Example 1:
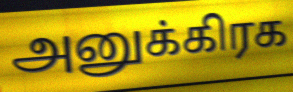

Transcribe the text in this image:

அனுக்கிரக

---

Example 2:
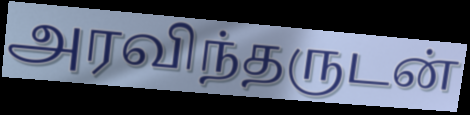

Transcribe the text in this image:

அரவிந்தருடன்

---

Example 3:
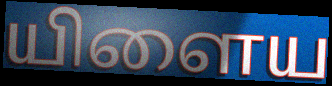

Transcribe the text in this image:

யிளைய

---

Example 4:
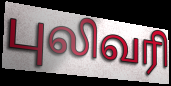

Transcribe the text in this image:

புலிவரி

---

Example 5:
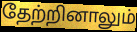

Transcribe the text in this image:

தேற்றினாலும்